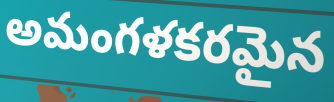
అమంగళకరమైన